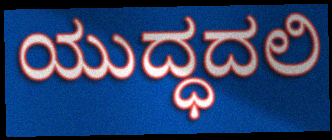
ಯುದ್ಧದಲಿ